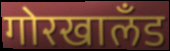
गोरखालॅंड